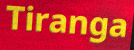
Tiranga